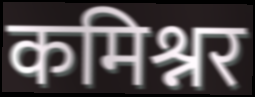
कमिश्नर